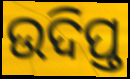
ଉଦିପ୍ତ